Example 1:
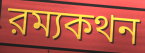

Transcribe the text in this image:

রম্যকথন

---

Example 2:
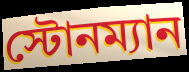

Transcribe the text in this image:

স্টোনম্যান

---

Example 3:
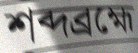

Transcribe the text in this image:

শব্দব্রহ্মে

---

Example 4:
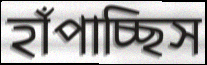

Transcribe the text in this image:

হাঁপাচ্ছিস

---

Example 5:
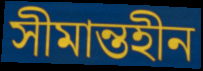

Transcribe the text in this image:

সীমান্তহীন